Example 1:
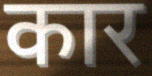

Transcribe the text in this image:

कार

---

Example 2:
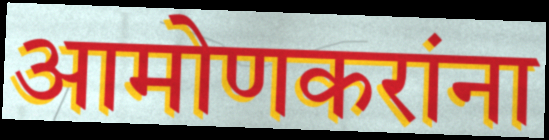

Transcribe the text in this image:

आमोणकरांना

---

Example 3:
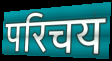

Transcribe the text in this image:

परिचय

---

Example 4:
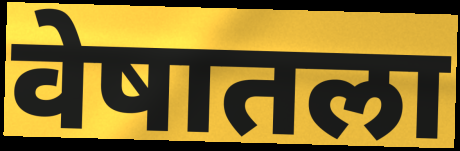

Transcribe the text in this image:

वेषातला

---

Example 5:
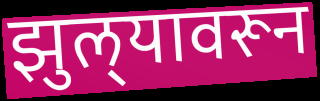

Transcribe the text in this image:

झुल्यावरून